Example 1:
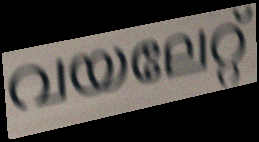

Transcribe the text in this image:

വയലേറ്റ്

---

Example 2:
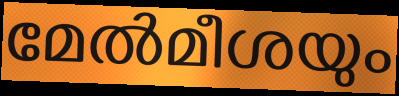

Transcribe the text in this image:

മേൽമീശയും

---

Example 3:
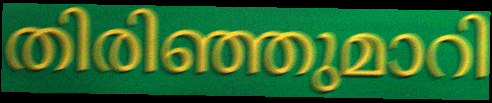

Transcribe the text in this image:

തിരിഞ്ഞുമാറി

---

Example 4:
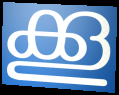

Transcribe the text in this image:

ക്കൂ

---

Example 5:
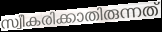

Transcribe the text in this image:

സ്വീകരിക്കാതിരുന്നത്